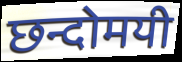
छन्दोमयी